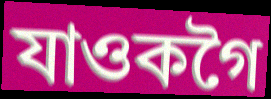
যাওকগৈ